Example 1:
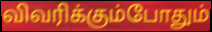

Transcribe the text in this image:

விவரிக்கும்போதும்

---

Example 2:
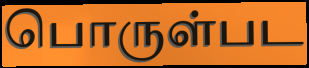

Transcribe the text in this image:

பொருள்பட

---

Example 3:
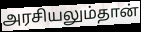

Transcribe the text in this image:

அரசியலும்தான்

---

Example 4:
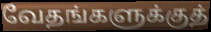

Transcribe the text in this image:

வேதங்களுக்குத்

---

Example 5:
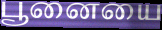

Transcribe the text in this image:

பூனையை